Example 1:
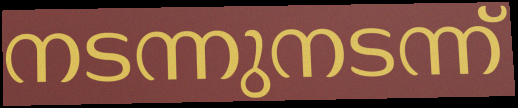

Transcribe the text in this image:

നടന്നുനടന്ന്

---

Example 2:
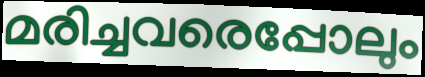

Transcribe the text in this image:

മരിച്ചവരെപ്പോലും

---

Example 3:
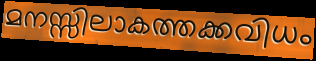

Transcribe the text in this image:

മനസ്സിലാകത്തക്കവിധം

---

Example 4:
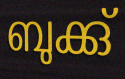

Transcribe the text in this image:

ബുക്കു്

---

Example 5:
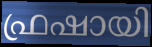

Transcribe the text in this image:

ഫ്രഷായി